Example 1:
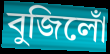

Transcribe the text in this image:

বুজিলোঁ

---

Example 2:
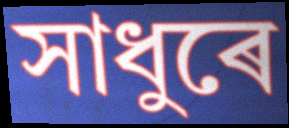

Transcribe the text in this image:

সাধুৰে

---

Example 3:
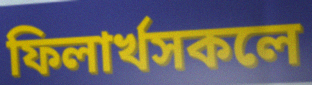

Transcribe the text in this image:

ফিলাৰ্খসকলে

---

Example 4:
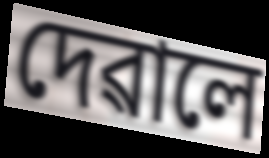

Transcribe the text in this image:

দেৱালে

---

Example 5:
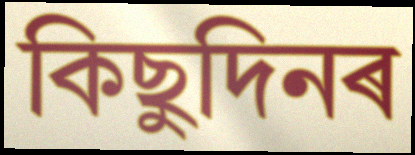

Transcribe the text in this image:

কিছুদিনৰ